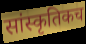
सांस्कृतिकच